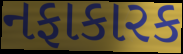
નફાકારક